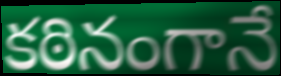
కఠినంగానే